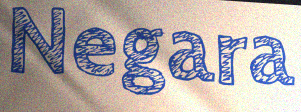
Negara